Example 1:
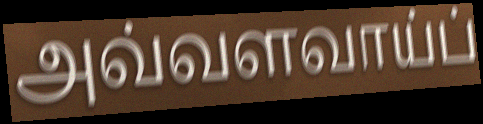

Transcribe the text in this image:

அவ்வளவாய்ப்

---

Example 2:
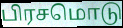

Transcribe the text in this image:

பிரசமொடு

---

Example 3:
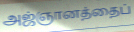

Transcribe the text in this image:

அஜ்ஞானத்தைப்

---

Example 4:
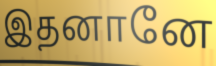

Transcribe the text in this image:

இதனானே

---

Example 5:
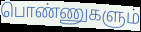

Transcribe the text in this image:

பொண்ணுகளும்